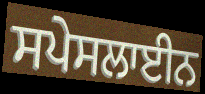
ਸਪੇਸਲਾਈਨ